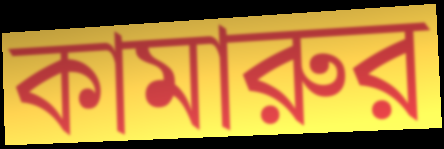
কামারুর